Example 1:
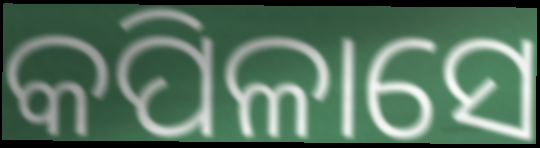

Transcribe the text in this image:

କପିଳାସେ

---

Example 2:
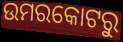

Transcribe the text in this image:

ଉମରକୋଟରୁ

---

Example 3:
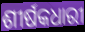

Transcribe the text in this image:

ଶୀର୍ଷକଧାରୀ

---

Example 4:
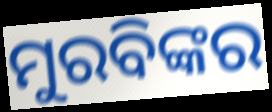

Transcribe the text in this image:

ମୁରବିଙ୍କର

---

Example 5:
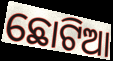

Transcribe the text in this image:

ଛୋଟିଆ